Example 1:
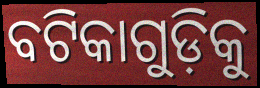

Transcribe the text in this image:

ବଟିକାଗୁଡ଼ିକୁ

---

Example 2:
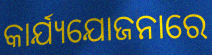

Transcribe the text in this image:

କାର୍ଯ୍ୟଯୋଜନାରେ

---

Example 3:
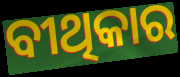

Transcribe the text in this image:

ବୀଥିକାର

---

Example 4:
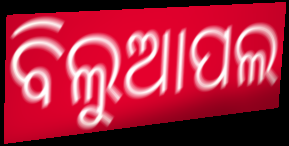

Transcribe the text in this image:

ବିଲୁଆପଲ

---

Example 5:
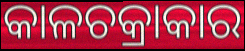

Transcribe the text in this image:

କାଳଚକ୍ରାକାର